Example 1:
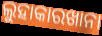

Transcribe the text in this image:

ଲୁହାକାରଖାନା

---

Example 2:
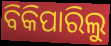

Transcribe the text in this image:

ବିକିପାରିଲୁ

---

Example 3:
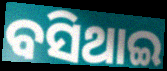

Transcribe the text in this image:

ବସିଥାଇ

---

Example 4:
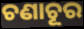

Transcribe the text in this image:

ଚଣାଚୂର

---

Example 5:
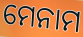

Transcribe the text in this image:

ମେନାମ